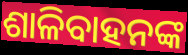
ଶାଳିବାହନଙ୍କ